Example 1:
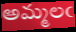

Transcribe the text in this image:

అమ్మలఁ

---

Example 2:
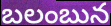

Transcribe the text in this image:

బలంబున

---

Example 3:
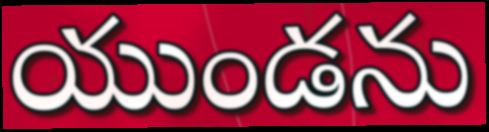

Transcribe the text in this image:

యుండను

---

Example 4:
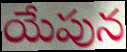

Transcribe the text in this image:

యేపున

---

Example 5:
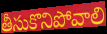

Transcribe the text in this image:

తీసుకొనిపోవాలి